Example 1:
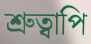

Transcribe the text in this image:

শ্রুত্বাপি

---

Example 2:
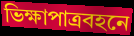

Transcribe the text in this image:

ভিক্ষাপাত্রবহনে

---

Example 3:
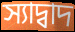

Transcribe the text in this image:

স্যাদ্বাদ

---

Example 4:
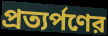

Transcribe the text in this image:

প্রত্যর্পণের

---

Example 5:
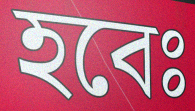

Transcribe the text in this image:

হবেঃ